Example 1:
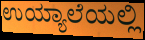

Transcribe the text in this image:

ಉಯ್ಯಾಲೆಯಲ್ಲಿ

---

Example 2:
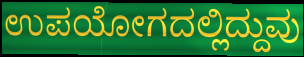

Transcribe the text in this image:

ಉಪಯೋಗದಲ್ಲಿದ್ದುವು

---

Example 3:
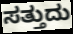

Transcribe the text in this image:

ಸತ್ತುದು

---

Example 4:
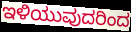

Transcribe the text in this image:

ಇಳಿಯುವುದರಿಂದ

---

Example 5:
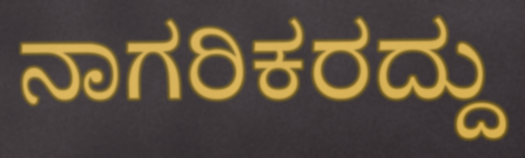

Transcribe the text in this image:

ನಾಗರಿಕರದ್ದು